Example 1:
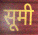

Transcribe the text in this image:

सूमी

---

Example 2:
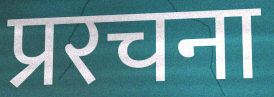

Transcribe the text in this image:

प्ररचना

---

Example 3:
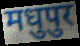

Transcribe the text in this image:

मधुपुर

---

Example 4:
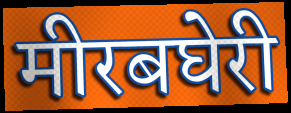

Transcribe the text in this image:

मीरबघेरी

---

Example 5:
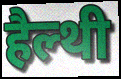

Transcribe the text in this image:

हैल्थी